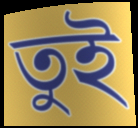
তুই